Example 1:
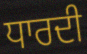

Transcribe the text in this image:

ਧਾਰਦੀ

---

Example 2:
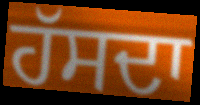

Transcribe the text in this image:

ਹੱਸਦਾ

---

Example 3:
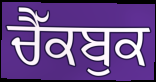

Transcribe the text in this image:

ਚੈੱਕਬੁਕ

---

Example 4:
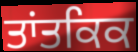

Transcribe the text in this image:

ਤਾਂਤਕਿਕ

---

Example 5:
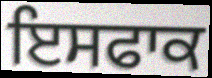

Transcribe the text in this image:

ਇਸਫਾਕ